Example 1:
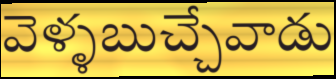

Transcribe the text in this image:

వెళ్ళబుచ్చేవాడు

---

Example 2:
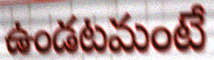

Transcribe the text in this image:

ఉండటమంటే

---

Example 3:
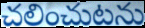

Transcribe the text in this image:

చలించుటను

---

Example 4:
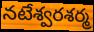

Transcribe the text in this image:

నటేశ్వరశర్మ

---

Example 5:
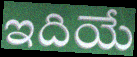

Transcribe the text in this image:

ఇదియే